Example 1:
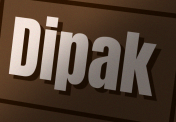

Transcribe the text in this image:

Dipak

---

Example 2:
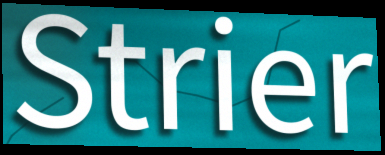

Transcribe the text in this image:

Strier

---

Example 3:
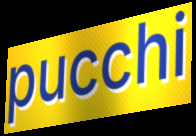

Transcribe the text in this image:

pucchi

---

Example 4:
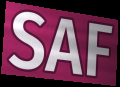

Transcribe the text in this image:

SAF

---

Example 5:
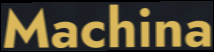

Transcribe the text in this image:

Machina